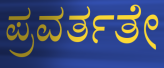
ಪ್ರವರ್ತತೇ